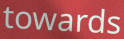
towards